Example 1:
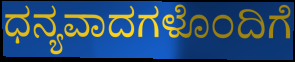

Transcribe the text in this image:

ಧನ್ಯವಾದಗಳೊಂದಿಗೆ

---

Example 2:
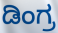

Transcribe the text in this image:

ಡಿಂಗ್ರ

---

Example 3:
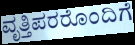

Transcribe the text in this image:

ವೃತ್ತಿಪರರೊಂದಿಗೆ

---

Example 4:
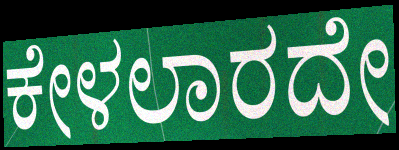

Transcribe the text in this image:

ಕೇಳಲಾರದೇ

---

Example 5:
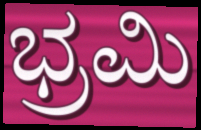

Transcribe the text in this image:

ಭ್ರಮಿ